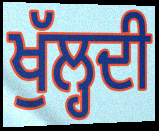
ਖੁੱਲ੍ਹਦੀ